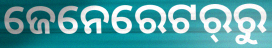
ଜେନେରେଟର୍‌ରୁ